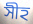
সীহ